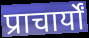
प्राचार्यों